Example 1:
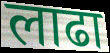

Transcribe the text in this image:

लाढा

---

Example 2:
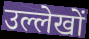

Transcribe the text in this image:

उल्लेखों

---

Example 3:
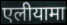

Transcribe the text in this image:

एलीयामा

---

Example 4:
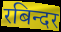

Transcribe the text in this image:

रबिन्दर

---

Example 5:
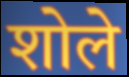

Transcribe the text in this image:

शोले